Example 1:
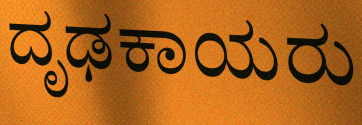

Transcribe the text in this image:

ದೃಢಕಾಯರು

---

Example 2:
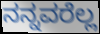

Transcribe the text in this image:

ನನ್ನವರೆಲ್ಲ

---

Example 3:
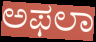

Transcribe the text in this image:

ಅಫಲಾ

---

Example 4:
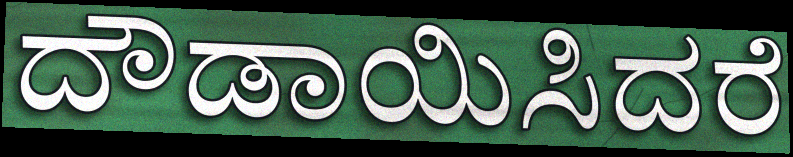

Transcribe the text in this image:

ದೌಡಾಯಿಸಿದರೆ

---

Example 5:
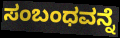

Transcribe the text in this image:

ಸಂಬಂಧವನ್ನೆ